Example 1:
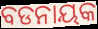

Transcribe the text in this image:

ବଡନାୟକ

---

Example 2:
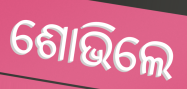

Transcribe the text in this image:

ଶୋଭିଲେ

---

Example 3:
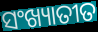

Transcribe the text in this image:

ସଂଖ୍ୟାତୀତ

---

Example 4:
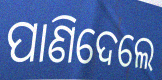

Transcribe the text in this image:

ପାଣିଦେଲେ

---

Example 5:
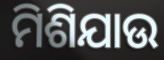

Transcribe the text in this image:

ମିଶିଯାଉ